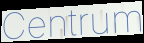
Centrum